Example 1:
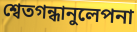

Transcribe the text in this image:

শ্বেতগন্ধানুলেপনা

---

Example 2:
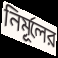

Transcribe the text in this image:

নির্মূলের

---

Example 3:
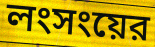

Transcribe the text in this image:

লংসংয়ের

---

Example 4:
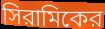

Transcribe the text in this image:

সিরামিকের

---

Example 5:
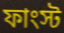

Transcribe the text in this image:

ফাংস্ট